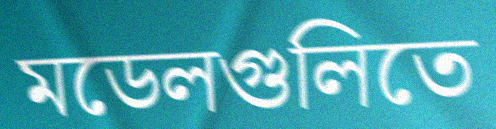
মডেলগুলিতে